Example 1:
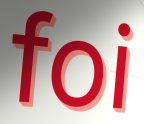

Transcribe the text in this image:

foi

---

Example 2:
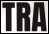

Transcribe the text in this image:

TRA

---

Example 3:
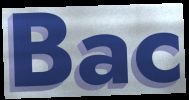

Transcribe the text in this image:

Bac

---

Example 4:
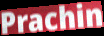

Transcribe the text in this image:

Prachin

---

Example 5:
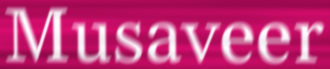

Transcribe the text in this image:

Musaveer